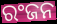
ରଂଜନ